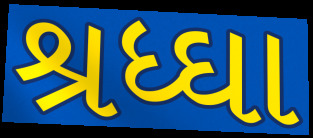
શ્રધ્ઘા